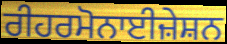
ਰੀਹਰਮੋਨਾਈਜ਼ੇਸ਼ਨ